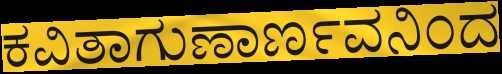
ಕವಿತಾಗುಣಾರ್ಣವನಿಂದ